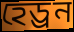
হেড্ৰন